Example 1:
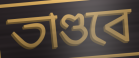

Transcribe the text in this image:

তাণ্ডবে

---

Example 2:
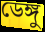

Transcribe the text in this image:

ডেঙ্গু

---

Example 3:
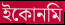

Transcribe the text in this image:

ইকোনমি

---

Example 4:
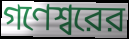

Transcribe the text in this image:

গণেশ্বরের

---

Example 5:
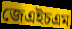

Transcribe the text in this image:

জেএইচএম